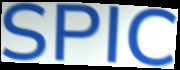
SPIC